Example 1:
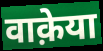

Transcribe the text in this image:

वाक़ेया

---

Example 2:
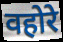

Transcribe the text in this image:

वहोरे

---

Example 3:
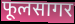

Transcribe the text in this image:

फूलसागर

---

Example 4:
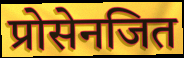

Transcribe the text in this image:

प्रोसेनजित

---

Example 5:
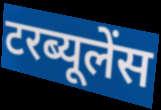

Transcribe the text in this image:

टरब्यूलेंस